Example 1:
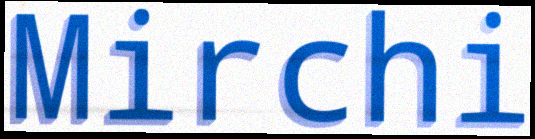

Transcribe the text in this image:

Mirchi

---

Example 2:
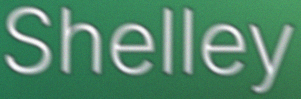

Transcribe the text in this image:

Shelley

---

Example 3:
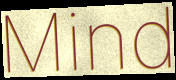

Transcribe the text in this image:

Mind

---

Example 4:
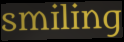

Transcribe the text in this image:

smiling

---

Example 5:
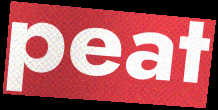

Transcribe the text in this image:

peat